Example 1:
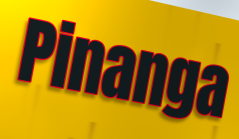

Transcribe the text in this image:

Pinanga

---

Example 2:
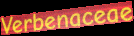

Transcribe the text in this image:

Verbenaceae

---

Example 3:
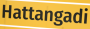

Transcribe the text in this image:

Hattangadi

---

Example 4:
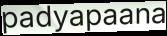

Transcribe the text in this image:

padyapaana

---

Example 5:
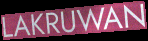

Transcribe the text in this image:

LAKRUWAN